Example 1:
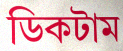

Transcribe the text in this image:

ডিকটাম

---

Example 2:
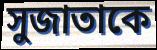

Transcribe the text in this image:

সুজাতাকে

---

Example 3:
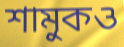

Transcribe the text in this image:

শামুকও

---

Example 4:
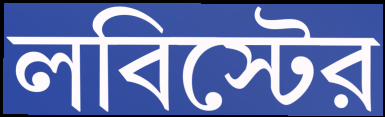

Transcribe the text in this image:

লবিস্টের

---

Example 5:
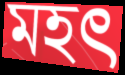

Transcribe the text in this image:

মহত্‍